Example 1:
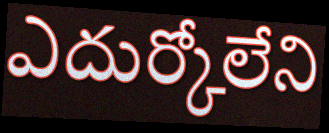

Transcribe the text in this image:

ఎదుర్కోలేని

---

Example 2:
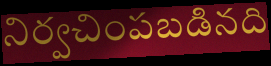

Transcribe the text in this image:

నిర్వచింపబడినది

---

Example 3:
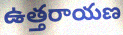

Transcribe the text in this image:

ఉత్తరాయణ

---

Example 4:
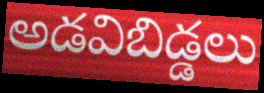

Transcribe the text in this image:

అడవిబిడ్డలు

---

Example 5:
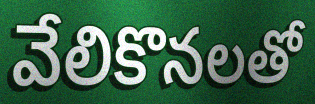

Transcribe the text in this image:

వేలికొనలతో